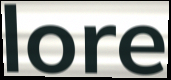
lore